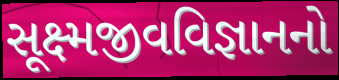
સૂક્ષ્મજીવવિજ્ઞાનનો